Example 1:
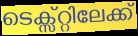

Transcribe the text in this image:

ടെക്സ്റ്റിലേക്ക്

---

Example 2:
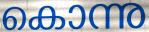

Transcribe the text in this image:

കൊന്നു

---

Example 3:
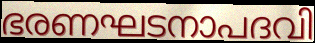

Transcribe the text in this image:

ഭരണഘടനാപദവി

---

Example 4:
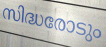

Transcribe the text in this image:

സിദ്ധരോടും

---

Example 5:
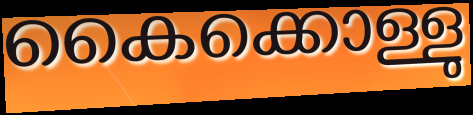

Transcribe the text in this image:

കൈക്കൊള്ളു